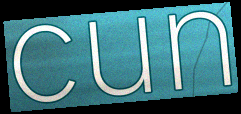
cun